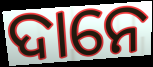
ଦାନେ